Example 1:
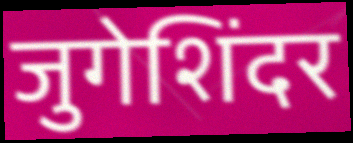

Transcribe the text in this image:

जुगेशिंदर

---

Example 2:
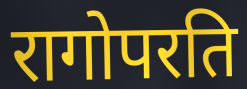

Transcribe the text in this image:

रागोपरति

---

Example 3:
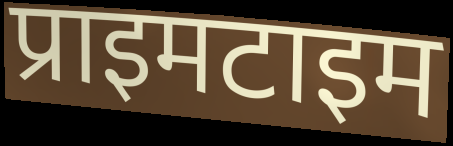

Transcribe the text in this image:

प्राइमटाइम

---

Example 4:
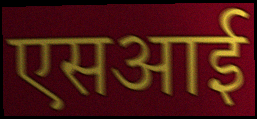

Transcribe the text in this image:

एसआई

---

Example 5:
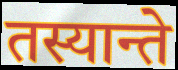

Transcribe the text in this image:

तस्यान्ते